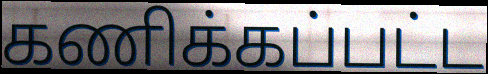
கணிக்கப்பட்ட